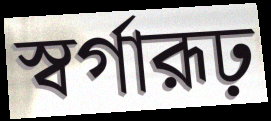
স্বর্গারূঢ়